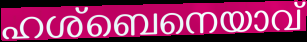
ഹശ്ബെനെയാവ്